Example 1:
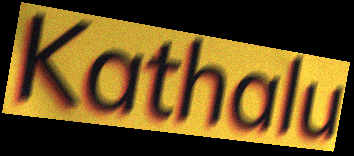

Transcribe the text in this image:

Kathalu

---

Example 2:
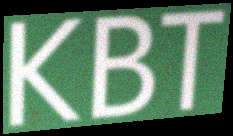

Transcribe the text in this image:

KBT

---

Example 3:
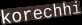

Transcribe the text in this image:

korechhi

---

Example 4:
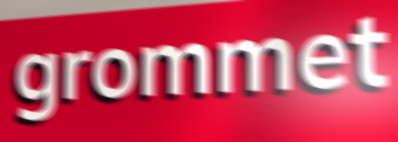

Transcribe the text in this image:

grommet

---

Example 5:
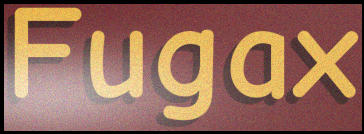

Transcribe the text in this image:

Fugax